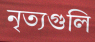
নৃত্যগুলি